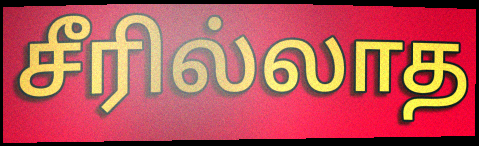
சீரில்லாத